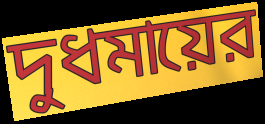
দুধমায়ের